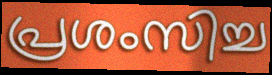
പ്രശംസിച്ച